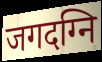
जगदग्नि